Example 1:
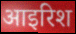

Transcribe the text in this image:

आइरिश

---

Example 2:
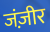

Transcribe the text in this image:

जंज़ीर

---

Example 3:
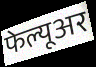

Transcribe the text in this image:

फेल्यूअर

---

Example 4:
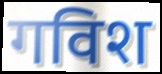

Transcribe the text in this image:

गविश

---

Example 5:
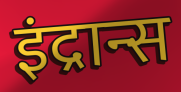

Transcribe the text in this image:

इंद्रान्स